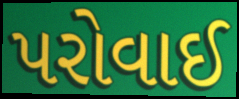
પરોવાઈ